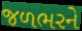
જળભરને